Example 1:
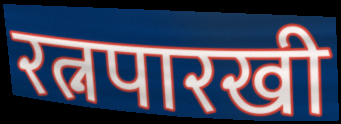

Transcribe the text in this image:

रत्नपारखी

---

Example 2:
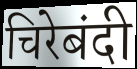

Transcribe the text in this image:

चिरेबंदी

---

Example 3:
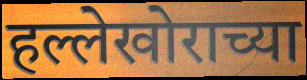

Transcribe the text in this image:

हल्लेखोराच्या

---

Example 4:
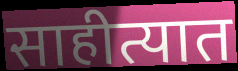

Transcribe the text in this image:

साहीत्यात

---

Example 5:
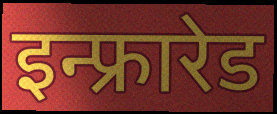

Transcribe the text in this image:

इन्फ्रारेड